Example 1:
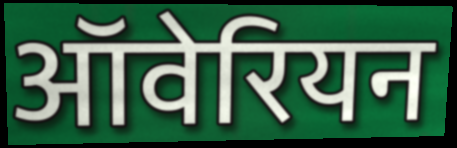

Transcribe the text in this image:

ऑवेरियन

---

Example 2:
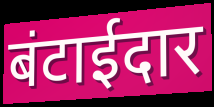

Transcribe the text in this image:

बंटाईदार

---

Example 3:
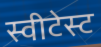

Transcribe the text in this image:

स्वीटेस्ट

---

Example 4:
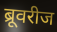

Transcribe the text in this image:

ब्रूवरीज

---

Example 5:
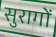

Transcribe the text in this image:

सुरागों